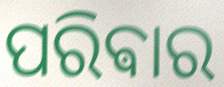
ପରିଵାର